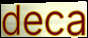
deca